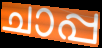
ചാപ്പ